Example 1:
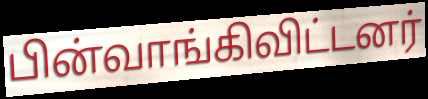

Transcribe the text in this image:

பின்வாங்கிவிட்டனர்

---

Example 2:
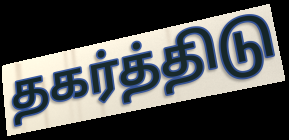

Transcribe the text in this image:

தகர்த்திடு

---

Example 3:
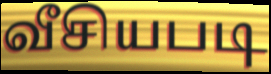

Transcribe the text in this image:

வீசியபடி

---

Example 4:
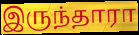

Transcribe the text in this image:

இருந்தாரா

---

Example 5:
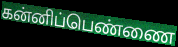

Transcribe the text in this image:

கன்னிப்பெண்ணை